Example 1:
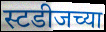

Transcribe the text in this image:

स्टडीजच्या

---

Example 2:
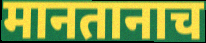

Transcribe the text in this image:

मानतानाच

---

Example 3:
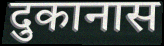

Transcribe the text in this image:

दुकानास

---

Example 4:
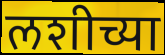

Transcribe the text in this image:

लशीच्या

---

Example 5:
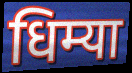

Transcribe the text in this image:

धिम्या